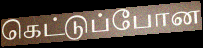
கெட்டுப்போன